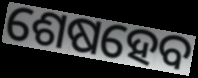
ଶେଷହେବ